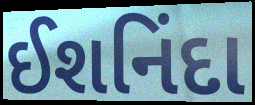
ઈશનિંદા